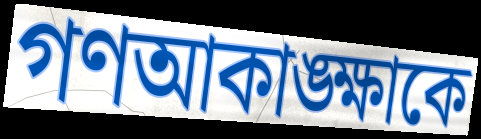
গণআকাঙ্ক্ষাকে